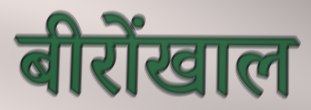
बीरोंखाल